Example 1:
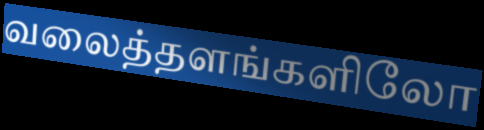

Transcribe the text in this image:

வலைத்தளங்களிலோ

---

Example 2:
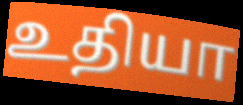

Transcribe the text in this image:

உதியா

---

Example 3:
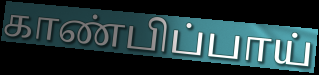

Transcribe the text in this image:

காண்பிப்பாய்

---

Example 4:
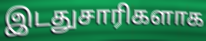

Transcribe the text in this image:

இடதுசாரிகளாக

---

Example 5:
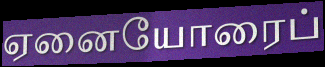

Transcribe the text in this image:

ஏனையோரைப்